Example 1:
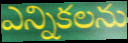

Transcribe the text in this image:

ఎన్నికలను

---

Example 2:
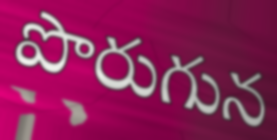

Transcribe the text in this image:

పొరుగున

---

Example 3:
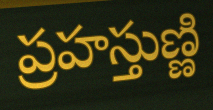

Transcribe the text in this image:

ప్రహస్తుణ్ణి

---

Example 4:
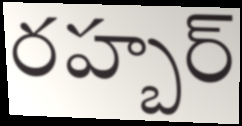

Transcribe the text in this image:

రహ్బర్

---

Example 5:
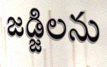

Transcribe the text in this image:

జడ్జిలను